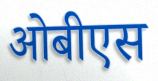
ओबीएस